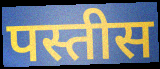
पस्तीस